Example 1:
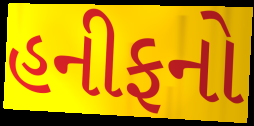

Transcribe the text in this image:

હનીફનો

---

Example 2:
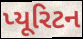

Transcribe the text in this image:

પ્યૂરિટન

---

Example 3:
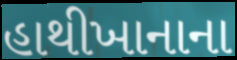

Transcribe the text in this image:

હાથીખાનાના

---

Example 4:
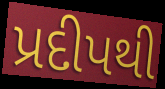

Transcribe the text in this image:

પ્રદીપથી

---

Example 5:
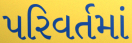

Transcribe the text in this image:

પરિવર્તમાં